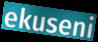
ekuseni